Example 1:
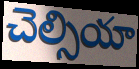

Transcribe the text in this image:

చెల్సియా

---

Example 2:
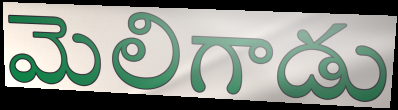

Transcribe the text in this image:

మెలిగాడు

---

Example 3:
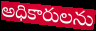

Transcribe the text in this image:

అధికారులను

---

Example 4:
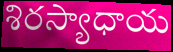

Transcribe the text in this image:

శిరస్యాధాయ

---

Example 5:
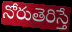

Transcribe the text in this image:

నోరుతెరిస్తే